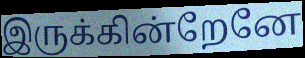
இருக்கின்றேனே